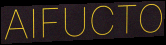
AIFUCTO